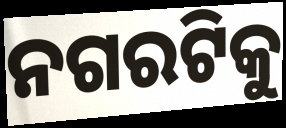
ନଗରଟିକୁ